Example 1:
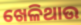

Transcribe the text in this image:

ଖେଳିଥାଉ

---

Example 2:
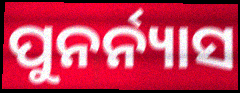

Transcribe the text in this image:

ପୁନର୍ନ୍ୟାସ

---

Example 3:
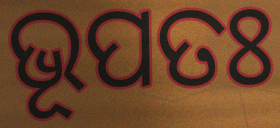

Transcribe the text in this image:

ଭୂପତଃ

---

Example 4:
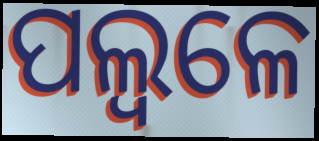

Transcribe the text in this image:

ପଲ୍ୱଳେ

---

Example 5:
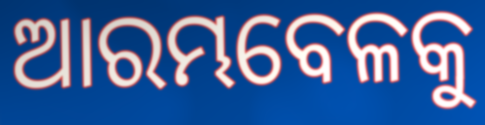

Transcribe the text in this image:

ଆରମ୍ଭବେଳକୁ